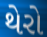
થેરો